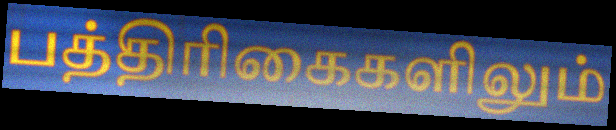
பத்திரிகைகளிலும்